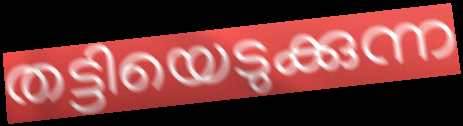
തട്ടിയെടുക്കുന്ന